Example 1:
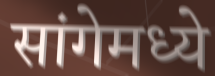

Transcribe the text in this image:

सांगेमध्ये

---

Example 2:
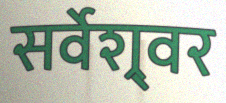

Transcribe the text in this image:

सर्वेश्र्वर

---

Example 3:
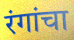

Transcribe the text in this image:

रंगांचा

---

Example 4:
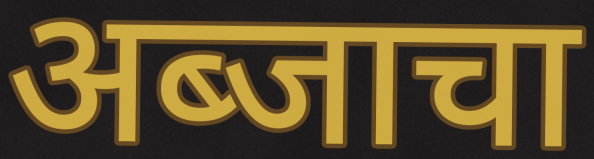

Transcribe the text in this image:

अब्जाचा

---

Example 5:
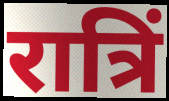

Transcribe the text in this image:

रात्रिं